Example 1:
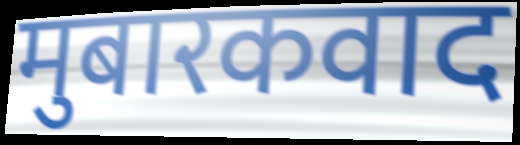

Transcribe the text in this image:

मुबारकवाद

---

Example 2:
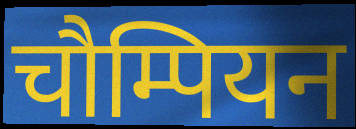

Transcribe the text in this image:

चौम्पियन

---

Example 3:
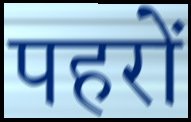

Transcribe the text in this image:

पहरों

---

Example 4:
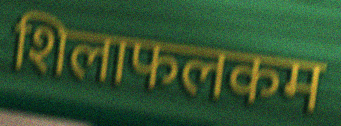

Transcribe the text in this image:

शिलाफलकम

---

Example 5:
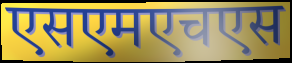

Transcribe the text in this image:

एसएमएचएस